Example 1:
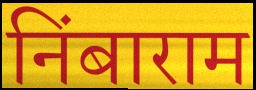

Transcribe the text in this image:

निंबाराम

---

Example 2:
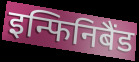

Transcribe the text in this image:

इन्फिनिबैंड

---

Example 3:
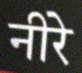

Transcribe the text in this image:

नीरे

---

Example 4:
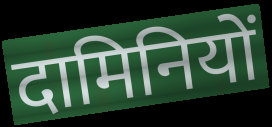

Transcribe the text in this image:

दामिनियों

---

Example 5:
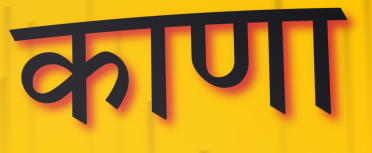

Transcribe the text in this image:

काणा